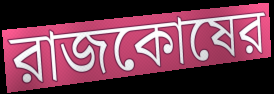
রাজকোষের